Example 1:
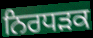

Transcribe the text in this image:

ਨਿਰਧੜਕ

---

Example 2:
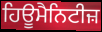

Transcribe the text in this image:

ਹਿਊਮੈਨਿਟੀਜ਼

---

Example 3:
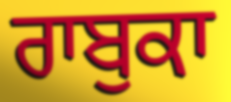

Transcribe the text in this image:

ਰਾਬੁਕਾ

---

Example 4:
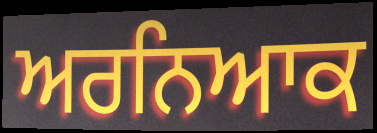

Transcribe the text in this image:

ਅਰਨਿਆਕ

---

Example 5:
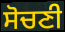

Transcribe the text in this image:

ਸੋਚਣੀ